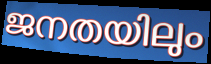
ജനതയിലും